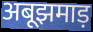
अबूझमाड़